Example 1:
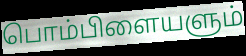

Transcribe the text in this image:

பொம்பிளையளும்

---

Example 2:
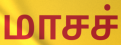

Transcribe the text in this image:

மாசச்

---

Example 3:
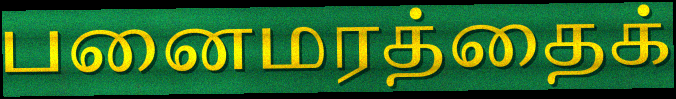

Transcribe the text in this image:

பனைமரத்தைக்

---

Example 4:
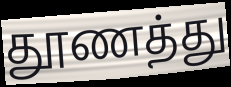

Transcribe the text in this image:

தூணத்து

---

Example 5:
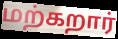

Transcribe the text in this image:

மற்கறார்